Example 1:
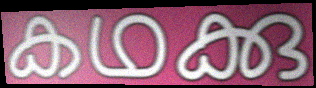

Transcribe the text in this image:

കഥക്കു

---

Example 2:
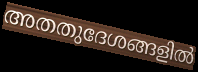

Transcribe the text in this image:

അതതുദേശങ്ങളിൽ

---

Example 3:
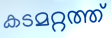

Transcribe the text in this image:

കടമറ്റത്ത്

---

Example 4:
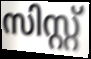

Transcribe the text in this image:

സിസ്റ്റ്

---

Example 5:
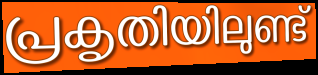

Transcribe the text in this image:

പ്രകൃതിയിലുണ്ട്